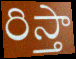
రిస్తా